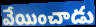
వేయించాడు